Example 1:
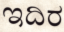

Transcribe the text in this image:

ಇದಿರ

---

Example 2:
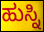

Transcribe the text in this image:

ಹುಸ್ನಿ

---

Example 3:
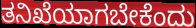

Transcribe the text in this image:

ತನಿಖೆಯಾಗಬೇಕೆಂದು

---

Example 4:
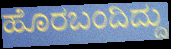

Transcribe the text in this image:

ಹೊರಬಂದಿದ್ದು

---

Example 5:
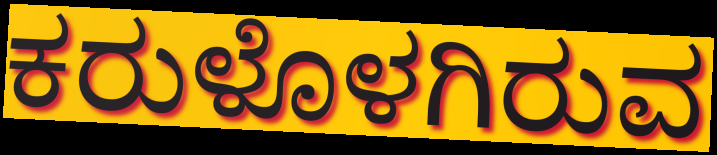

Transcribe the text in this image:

ಕರುಳೊಳಗಿರುವ